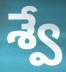
శ్వే